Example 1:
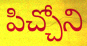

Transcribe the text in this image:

పిచ్చోని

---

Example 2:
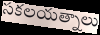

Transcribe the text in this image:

సకలయత్నాలు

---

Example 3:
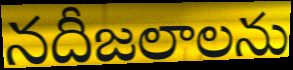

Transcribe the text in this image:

నదీజలాలను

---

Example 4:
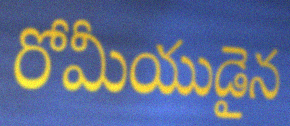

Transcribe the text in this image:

రోమీయుడైన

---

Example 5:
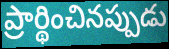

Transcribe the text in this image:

ప్రార్థించినప్పుడు